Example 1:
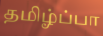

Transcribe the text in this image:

தமிழ்ப்பா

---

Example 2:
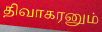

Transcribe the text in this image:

திவாகரனும்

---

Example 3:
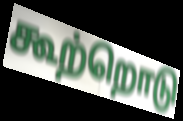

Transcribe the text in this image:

கூற்றொடு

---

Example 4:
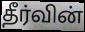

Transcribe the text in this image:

தீர்வின்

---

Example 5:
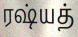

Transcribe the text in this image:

ரஷ்யத்